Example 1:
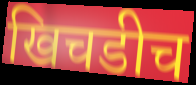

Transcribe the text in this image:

खिचडीच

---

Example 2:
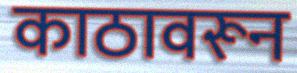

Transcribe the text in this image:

काठावरून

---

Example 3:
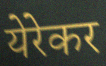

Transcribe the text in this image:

येरेकर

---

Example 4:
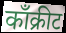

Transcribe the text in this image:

काँक्रीट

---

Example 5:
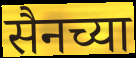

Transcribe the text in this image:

सैनच्या